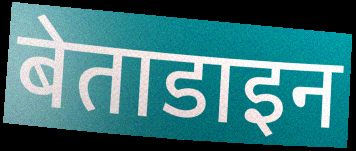
बेताडाइन